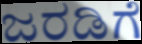
ಜರಡಿಗೆ